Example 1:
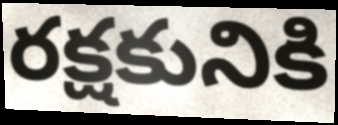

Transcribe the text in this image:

రక్షకునికి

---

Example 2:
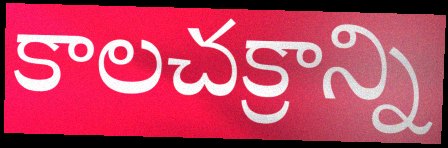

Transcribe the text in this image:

కాలచక్రాన్ని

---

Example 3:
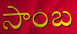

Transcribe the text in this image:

సాంబ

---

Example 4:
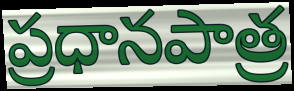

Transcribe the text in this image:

ప్రధానపాత్ర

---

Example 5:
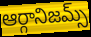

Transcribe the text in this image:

ఆర్గానిజమ్స్